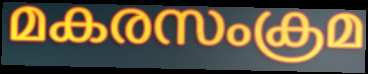
മകരസംക്രമ